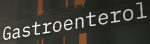
Gastroenterol